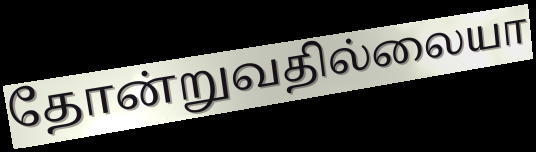
தோன்றுவதில்லையா